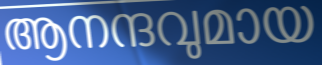
ആനന്ദവുമായ